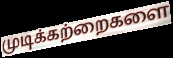
முடிக்கற்றைகளை